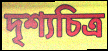
দৃশ্যচিত্র